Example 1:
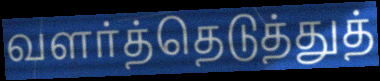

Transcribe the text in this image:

வளர்த்தெடுத்துத்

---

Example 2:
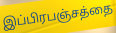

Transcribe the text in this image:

இப்பிரபஞ்சத்தை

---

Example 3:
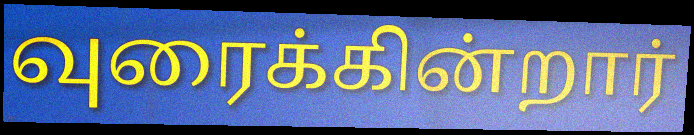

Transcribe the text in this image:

வுரைக்கின்றார்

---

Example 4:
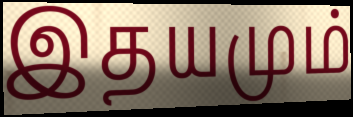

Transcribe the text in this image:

இதயமும்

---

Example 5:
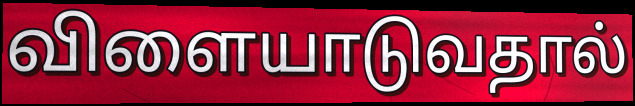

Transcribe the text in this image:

விளையாடுவதால்